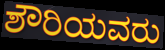
ಶೌರಿಯವರು